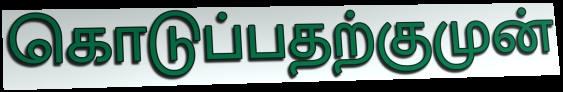
கொடுப்பதற்குமுன்